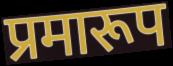
प्रमारूप